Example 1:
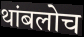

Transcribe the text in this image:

थांबलोच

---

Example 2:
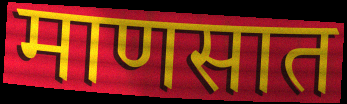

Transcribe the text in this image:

माणसात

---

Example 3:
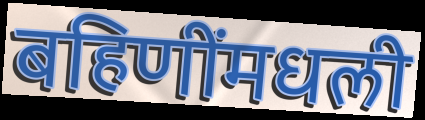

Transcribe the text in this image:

बहिणींमधली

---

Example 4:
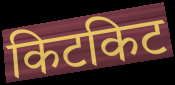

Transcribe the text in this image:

किटकिट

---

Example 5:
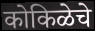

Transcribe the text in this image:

कोकिळेचे